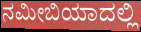
ನಮೀಬಿಯಾದಲ್ಲಿ